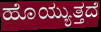
ಹೊಯ್ಯುತ್ತದೆ